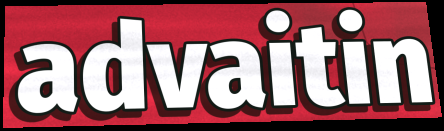
advaitin